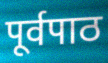
पूर्वपाठ